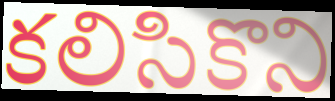
కలిసికొని